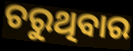
ଚରୁଥିବାର